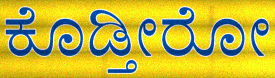
ಕೊಡ್ತೀರೋ